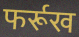
फर्रूख